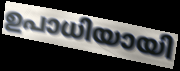
ഉപാധിയായി